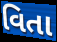
વિતા